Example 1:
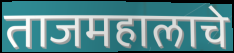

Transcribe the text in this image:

ताजमहालाचे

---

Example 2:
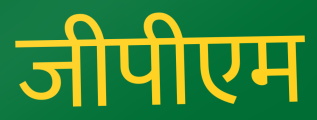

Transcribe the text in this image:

जीपीएम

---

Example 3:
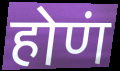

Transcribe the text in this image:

होणं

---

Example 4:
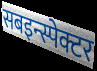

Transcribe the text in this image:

सबइन्स्पेक्टर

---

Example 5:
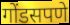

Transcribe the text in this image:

गोंडसपणे